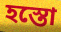
হস্তো